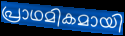
പ്രാഥമികമായി